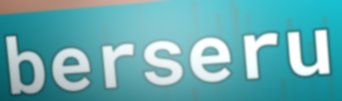
berseru